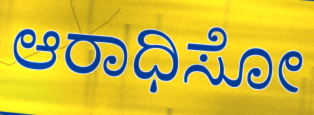
ಆರಾಧಿಸೋ